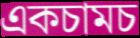
একচামচ